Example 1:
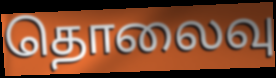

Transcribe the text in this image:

தொலைவு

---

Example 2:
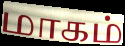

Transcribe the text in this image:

மாகம்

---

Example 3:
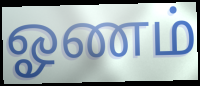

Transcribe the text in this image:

ஓணம்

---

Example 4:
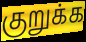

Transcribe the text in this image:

குறுக்க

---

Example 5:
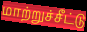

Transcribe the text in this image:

மாற்றுச்சீட்டு